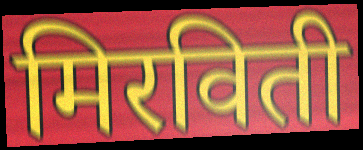
मिरविती